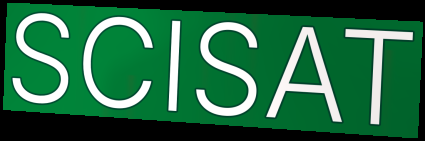
SCISAT